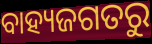
ବାହ୍ୟଜଗତରୁ